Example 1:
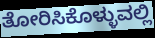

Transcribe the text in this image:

ತೋರಿಸಿಕೊಳ್ಳುವಲ್ಲಿ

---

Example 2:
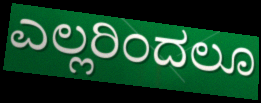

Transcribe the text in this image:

ಎಲ್ಲರಿಂದಲೂ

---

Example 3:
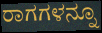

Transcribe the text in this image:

ರಾಗಗಳನ್ನೂ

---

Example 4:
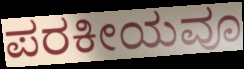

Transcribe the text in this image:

ಪರಕೀಯವೂ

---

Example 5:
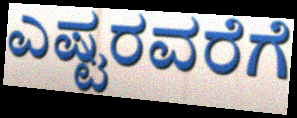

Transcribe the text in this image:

ಎಷ್ಟರವರೆಗೆ